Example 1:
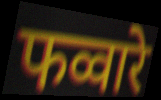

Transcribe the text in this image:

फव्वारे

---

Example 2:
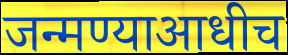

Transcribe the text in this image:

जन्मण्याआधीच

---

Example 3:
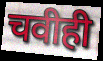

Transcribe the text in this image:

चवीही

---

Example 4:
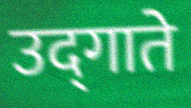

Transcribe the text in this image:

उद्‌गाते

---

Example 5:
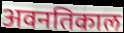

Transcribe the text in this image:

अवनतिकाल